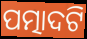
ପତ୍ମାଦଟି